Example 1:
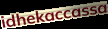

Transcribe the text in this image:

idhekaccassa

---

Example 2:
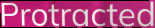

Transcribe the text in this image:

Protracted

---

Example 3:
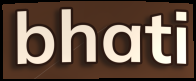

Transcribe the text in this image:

bhati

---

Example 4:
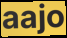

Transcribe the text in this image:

aajo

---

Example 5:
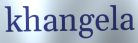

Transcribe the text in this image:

khangela